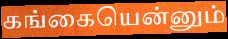
கங்கையென்னும்